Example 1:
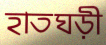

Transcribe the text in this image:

হাতঘড়ী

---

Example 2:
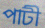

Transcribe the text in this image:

পাটী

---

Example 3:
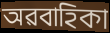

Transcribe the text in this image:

অৱবাহিকা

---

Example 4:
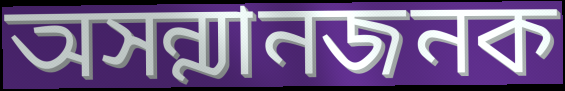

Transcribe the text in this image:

অসন্মানজনক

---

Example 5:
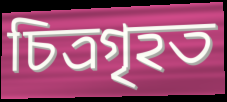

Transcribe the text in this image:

চিত্ৰগৃহত